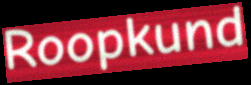
Roopkund